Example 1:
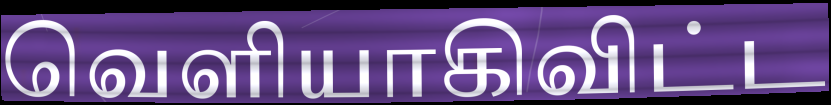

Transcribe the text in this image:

வெளியாகிவிட்ட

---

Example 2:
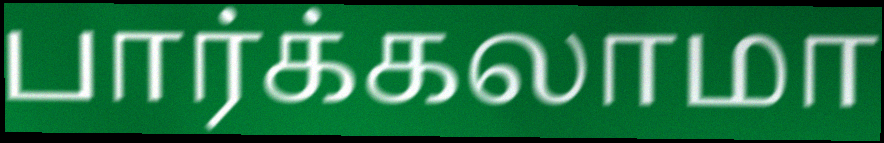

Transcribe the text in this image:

பார்க்கலாமா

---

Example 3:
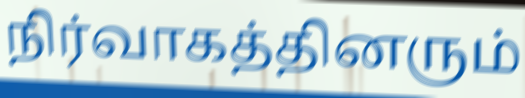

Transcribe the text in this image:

நிர்வாகத்தினரும்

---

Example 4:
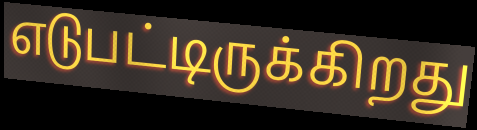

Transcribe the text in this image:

எடுபட்டிருக்கிறது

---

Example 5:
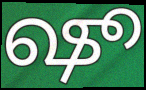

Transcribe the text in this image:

ஷூ